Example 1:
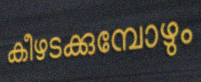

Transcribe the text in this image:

കീഴടക്കുമ്പോഴും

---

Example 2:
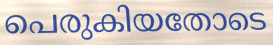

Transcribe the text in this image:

പെരുകിയതോടെ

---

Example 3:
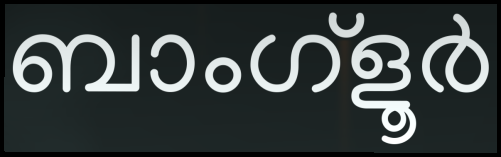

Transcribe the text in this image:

ബാംഗ്ളൂർ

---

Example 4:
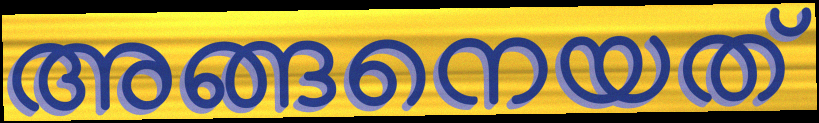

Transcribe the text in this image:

അങ്ങനെയത്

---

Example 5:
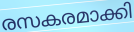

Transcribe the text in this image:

രസകരമാക്കി